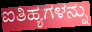
ಐತಿಹ್ಯಗಳನ್ನು